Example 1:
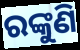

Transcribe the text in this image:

ରଙ୍କୁଣି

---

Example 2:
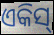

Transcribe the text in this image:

ଏକିସ୍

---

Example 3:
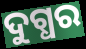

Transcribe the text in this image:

ଦୁଗ୍ଧର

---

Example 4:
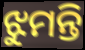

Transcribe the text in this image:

ଝୁମନ୍ତି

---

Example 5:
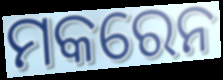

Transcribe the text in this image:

ମକରେନ